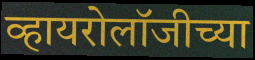
व्हायरोलॉजीच्या